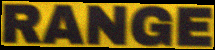
RANGE